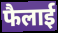
फैलाई